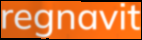
regnavit